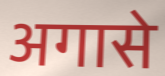
अगासे